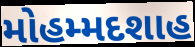
મોહમ્મદશાહ